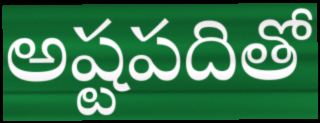
అష్టపదితో